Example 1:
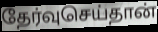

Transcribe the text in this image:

தேர்வுசெய்தான்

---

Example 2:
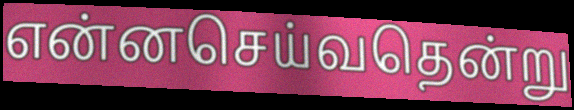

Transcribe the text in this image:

என்னசெய்வதென்று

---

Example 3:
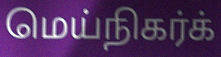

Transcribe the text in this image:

மெய்நிகர்க்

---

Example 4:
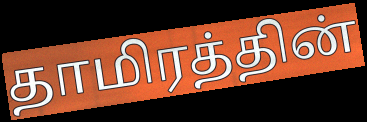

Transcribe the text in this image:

தாமிரத்தின்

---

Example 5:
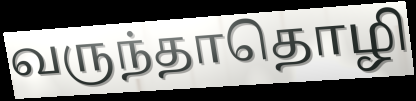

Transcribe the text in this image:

வருந்தாதொழி